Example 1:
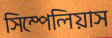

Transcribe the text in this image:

সিম্পেলিয়াস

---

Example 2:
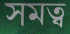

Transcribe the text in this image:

সমত্ব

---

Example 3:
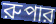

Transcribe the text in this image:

রুপার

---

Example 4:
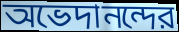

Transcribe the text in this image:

অভেদানন্দের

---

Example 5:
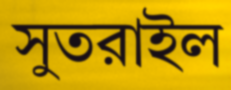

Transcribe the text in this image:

সুতরাইল